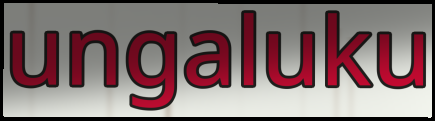
ungaluku